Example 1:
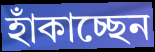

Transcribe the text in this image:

হাঁকাচ্ছেন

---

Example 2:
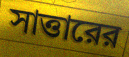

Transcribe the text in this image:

সাত্তারের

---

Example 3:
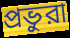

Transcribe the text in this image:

প্রভুরা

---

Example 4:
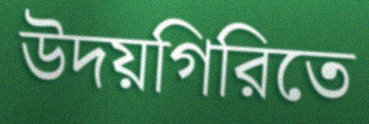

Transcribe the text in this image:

উদয়গিরিতে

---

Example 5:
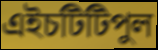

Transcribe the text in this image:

এইচটিটিপুল